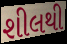
શીલથી